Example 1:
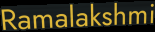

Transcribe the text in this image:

Ramalakshmi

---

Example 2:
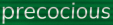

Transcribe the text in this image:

precocious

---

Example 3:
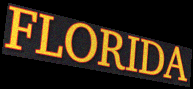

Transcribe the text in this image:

FLORIDA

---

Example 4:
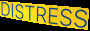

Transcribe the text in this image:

DISTRESS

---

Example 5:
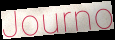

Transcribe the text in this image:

Journo